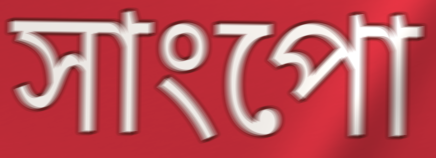
সাংপো